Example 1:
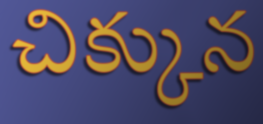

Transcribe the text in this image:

చిక్కున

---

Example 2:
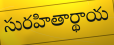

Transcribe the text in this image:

సురహితార్థాయ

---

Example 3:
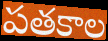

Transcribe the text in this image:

పతకాల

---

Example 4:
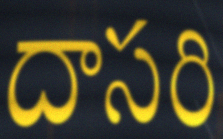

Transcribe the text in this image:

దాసరి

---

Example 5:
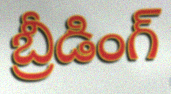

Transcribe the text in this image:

బ్రీడింగ్